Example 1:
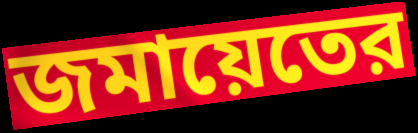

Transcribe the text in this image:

জমায়েতের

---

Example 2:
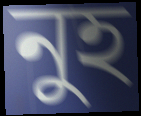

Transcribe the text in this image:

নুহ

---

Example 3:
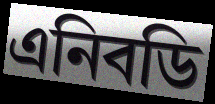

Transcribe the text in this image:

এনিবডি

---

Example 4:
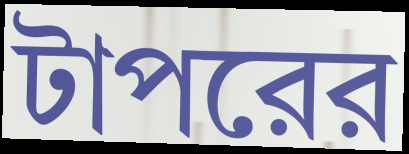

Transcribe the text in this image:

টাপরের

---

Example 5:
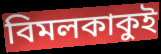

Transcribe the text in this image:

বিমলকাকুই